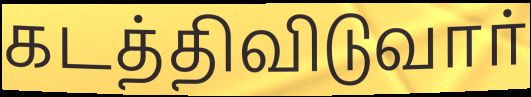
கடத்திவிடுவார்